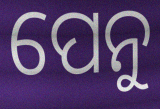
ପେନୁ